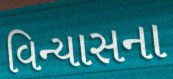
વિન્યાસના